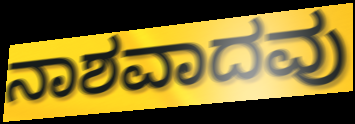
ನಾಶವಾದವು